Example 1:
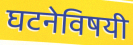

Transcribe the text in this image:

घटनेविषयी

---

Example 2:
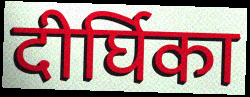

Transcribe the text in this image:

दीर्घिका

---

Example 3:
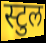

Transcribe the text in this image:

स्टुल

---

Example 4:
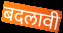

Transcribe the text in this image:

बदलावी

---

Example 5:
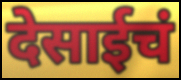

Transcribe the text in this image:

देसाईचं